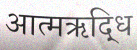
आत्मऋद्धि